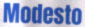
Modesto